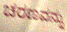
ಚರಣವನ್ನು